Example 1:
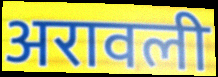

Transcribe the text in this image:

अरावली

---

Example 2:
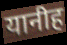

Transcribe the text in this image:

यानीह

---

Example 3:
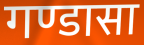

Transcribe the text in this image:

गण्डासा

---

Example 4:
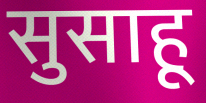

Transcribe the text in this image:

सुसाहू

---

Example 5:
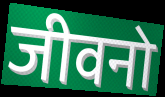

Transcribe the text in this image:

जीवनो